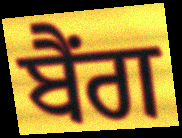
ਬੈਂਗ